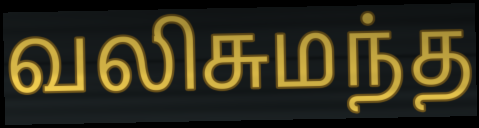
வலிசுமந்த